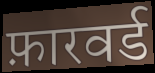
फ़ारवर्ड